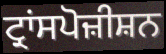
ਟ੍ਰਾਂਸਪੋਜ਼ੀਸ਼ਨ